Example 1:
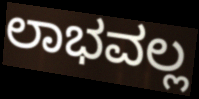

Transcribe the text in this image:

ಲಾಭವಲ್ಲ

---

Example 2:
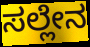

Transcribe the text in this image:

ಸಲ್ಲೇನ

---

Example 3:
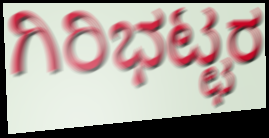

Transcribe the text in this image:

ಗಿರಿಭಟ್ಟರ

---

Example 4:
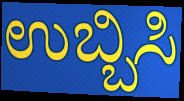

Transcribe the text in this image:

ಉಬ್ಬಿಸಿ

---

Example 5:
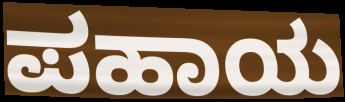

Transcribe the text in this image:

ಪಹಾಯ